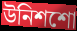
উনিশশো